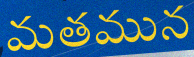
మతమున